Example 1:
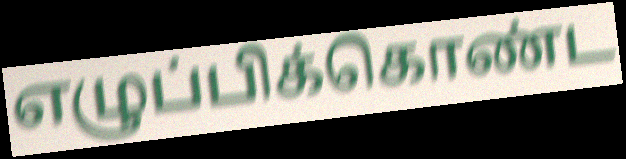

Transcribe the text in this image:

எழுப்பிக்கொண்ட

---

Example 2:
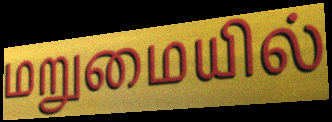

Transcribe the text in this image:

மறுமையில்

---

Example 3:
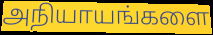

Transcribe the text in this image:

அநியாயங்களை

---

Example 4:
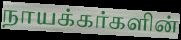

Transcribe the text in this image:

நாயக்கர்களின்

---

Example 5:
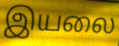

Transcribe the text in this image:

இயலை